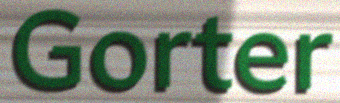
Gorter